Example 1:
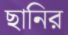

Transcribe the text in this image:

ছানির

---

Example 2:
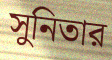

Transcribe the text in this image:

সুনিতার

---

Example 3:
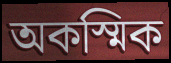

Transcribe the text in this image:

অকস্মিক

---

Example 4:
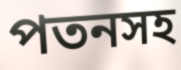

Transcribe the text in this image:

পতনসহ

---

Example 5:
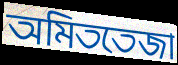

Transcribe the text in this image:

অমিততেজা